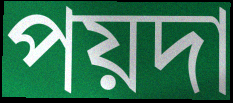
পয়দা